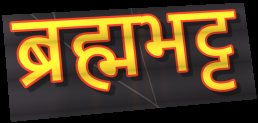
ब्रह्मभट्ट